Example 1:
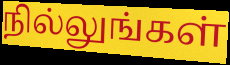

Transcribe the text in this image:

நில்லுங்கள்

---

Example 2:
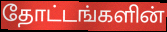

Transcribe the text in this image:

தோட்டங்களின்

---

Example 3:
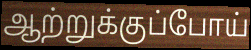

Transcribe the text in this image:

ஆற்றுக்குப்போய்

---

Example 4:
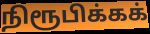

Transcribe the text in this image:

நிரூபிக்கக்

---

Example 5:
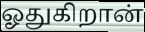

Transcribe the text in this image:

ஓதுகிறான்